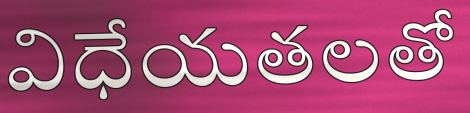
విధేయతలతో